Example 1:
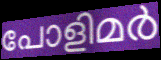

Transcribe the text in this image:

പോളിമർ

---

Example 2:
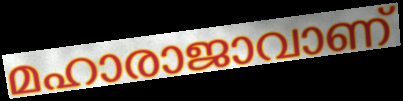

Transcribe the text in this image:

മഹാരാജാവാണ്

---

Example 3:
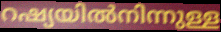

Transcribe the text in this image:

റഷ്യയിൽനിന്നുള്ള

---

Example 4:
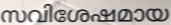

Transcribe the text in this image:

സവിശേഷമായ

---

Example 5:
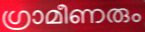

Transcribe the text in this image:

ഗ്രാമീണരും